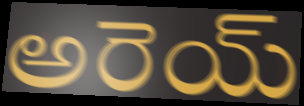
అరెయ్